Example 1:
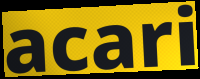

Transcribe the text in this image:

acari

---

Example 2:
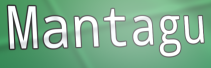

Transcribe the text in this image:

Mantagu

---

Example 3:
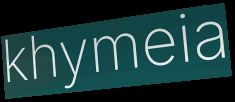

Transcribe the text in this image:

khymeia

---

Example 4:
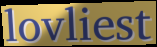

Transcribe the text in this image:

lovliest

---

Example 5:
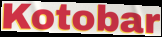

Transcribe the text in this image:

Kotobar